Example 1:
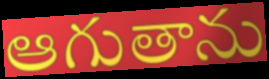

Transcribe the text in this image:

ఆగుతాను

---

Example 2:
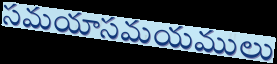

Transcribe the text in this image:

సమయాసమయములు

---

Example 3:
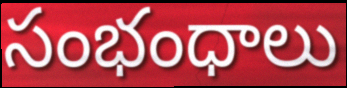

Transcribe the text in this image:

సంభంధాలు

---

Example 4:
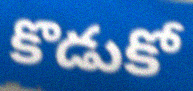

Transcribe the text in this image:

కొడుకో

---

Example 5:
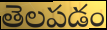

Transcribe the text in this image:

తెలపడం